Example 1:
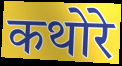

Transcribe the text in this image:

कथोरे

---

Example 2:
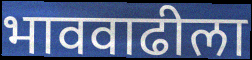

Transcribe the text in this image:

भाववाढीला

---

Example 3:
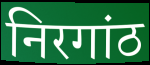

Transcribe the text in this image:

निरगांठ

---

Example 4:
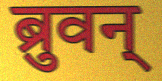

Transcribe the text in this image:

ब्रुवन्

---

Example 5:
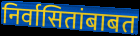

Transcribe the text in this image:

निर्वासितांबाबत